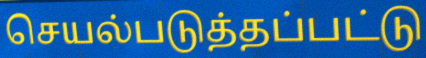
செயல்படுத்தப்பட்டு